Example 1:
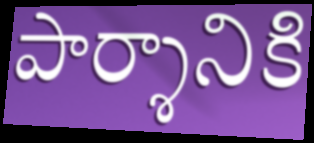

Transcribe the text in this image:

పార్శానికి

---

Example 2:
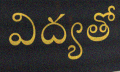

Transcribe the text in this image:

విద్యతో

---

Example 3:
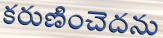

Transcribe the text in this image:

కరుణించెదను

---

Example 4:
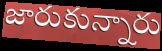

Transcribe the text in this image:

జారుకున్నారు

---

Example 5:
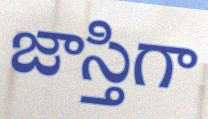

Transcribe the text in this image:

జాస్తిగా